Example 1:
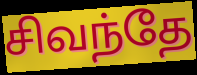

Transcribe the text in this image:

சிவந்தே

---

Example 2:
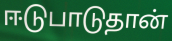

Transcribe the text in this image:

ஈடுபாடுதான்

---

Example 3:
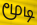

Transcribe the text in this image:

மூடி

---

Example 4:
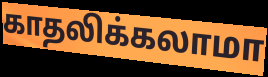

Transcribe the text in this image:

காதலிக்கலாமா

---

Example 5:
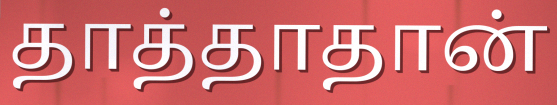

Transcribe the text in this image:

தாத்தாதான்